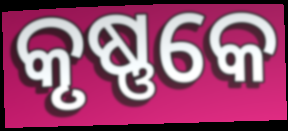
କୃଷ୍ଣକେ